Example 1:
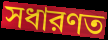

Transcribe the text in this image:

সধারণত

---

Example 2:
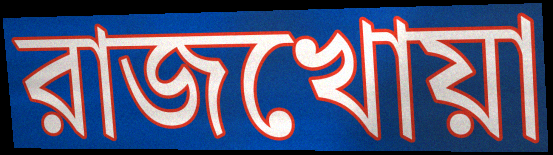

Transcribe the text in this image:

রাজখোয়া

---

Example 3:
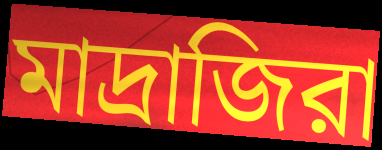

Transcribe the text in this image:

মাদ্রাজিরা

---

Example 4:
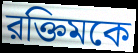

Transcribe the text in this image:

রক্তিমকে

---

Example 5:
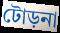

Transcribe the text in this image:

টোড়না